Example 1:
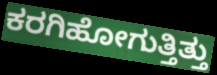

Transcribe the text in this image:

ಕರಗಿಹೋಗುತ್ತಿತ್ತು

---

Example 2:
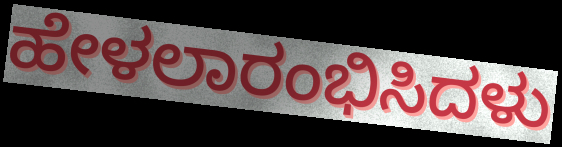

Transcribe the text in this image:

ಹೇಳಲಾರಂಭಿಸಿದಳು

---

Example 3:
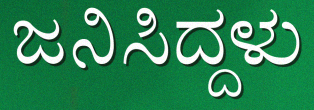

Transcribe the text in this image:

ಜನಿಸಿದ್ದಳು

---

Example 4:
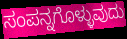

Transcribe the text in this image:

ಸಂಪನ್ನಗೊಳ್ಳುವುದು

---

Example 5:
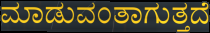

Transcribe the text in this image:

ಮಾಡುವಂತಾಗುತ್ತದೆ